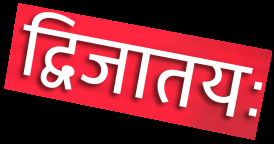
द्विजातयः